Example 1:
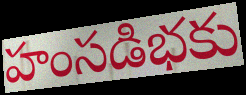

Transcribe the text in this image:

హంసడిభకు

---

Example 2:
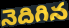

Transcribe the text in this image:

నెదిగిన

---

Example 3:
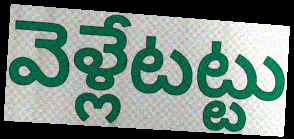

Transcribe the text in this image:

వెళ్లేటట్టు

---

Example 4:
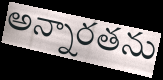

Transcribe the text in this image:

అన్నారతను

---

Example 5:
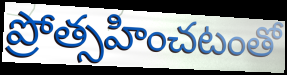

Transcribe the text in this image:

ప్రోత్సహించటంతో